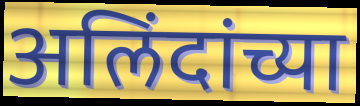
अलिंदांच्या